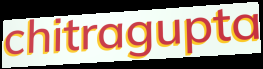
chitragupta